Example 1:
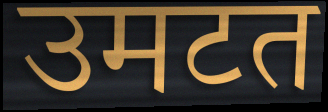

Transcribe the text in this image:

उमटत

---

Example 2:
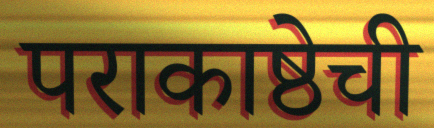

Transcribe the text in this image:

पराकाष्ठेची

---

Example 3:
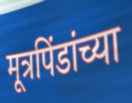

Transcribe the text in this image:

मूत्रपिंडांच्या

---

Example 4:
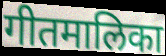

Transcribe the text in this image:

गीतमालिका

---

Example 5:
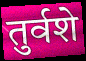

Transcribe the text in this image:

तुर्वशे